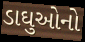
ડાઘુઓનો